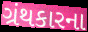
ગ્રંથકારના